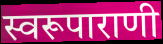
स्वरूपाराणी